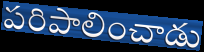
పరిపాలించాడు